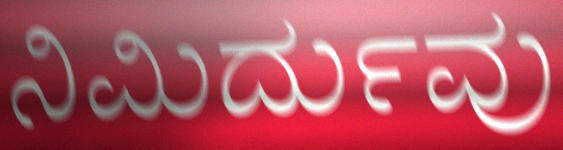
ನಿಮಿರ್ದುವು